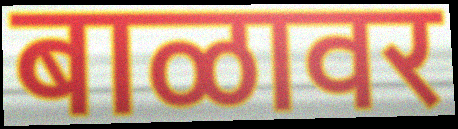
बाळावर